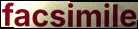
facsimile